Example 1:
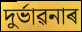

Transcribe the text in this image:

দুৰ্ভাৱনাৰ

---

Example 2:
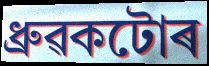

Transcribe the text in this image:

ধ্ৰুৱকটোৰ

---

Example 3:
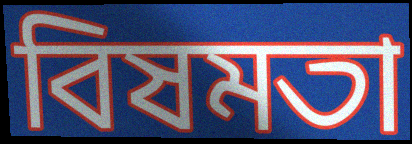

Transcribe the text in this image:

বিষমতা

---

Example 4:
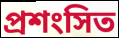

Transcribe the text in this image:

প্ৰশংসিত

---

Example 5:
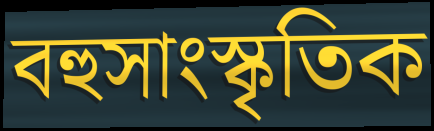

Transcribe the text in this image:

বহুসাংস্কৃতিক